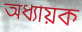
অধ্যায়ক